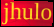
jhulo